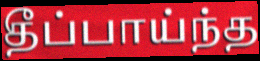
தீப்பாய்ந்த